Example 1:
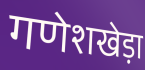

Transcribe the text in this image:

गणेशखेड़ा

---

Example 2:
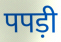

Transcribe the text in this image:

पपड़ी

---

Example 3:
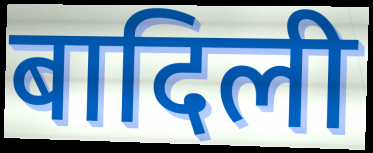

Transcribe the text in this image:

बादिली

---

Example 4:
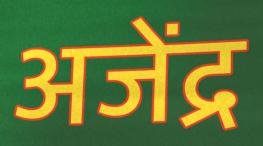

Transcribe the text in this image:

अजेंद्र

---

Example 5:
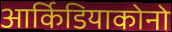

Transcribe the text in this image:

आर्किडियाकोनो